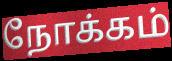
நோக்கம்